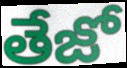
తేజో